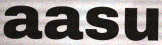
aasu